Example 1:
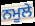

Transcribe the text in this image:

ਨਮੂਲੇ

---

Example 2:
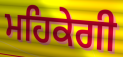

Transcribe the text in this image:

ਮਹਿਕੇਗੀ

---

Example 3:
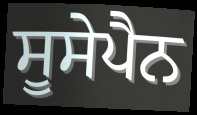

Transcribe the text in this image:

ਸੂਸੇਪੈਨ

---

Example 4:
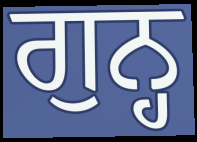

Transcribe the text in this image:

ਗੁਨ੍ਹ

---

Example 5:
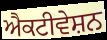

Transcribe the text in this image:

ਐਕਟੀਵੇਸ਼ਨ